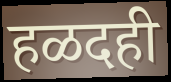
हळदही